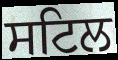
ਸਟਿਲ